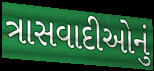
ત્રાસવાદીઓનું